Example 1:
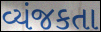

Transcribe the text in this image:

વ્યંજકતા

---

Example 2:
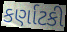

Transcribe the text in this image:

કર્ણાટકી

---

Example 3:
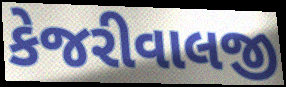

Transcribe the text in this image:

કેજરીવાલજી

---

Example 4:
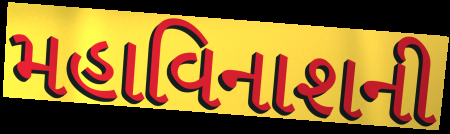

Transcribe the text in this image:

મહાવિનાશની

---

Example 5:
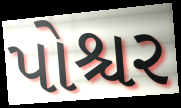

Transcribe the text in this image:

પોશ્ચર